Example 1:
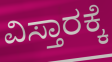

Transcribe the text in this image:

ವಿಸ್ತಾರಕ್ಕೆ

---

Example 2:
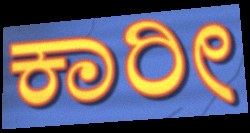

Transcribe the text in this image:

ಕಾರೀ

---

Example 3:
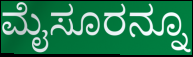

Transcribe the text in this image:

ಮೈಸೂರನ್ನೂ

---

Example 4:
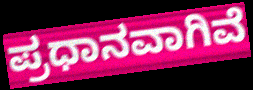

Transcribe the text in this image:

ಪ್ರಧಾನವಾಗಿವೆ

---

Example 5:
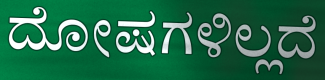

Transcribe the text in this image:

ದೋಷಗಳಿಲ್ಲದೆ